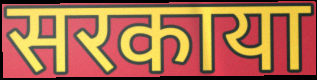
सरकाया